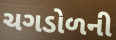
ચગડોળની